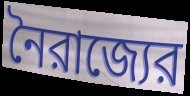
নৈরাজ্যের